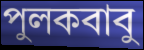
পুলকবাবু